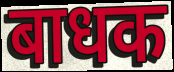
बाधक